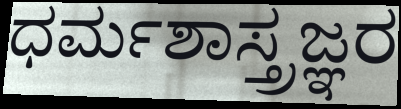
ಧರ್ಮಶಾಸ್ತ್ರಜ್ಞರ